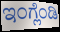
ಇಂಗ್ಲೆಂಡಿ